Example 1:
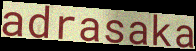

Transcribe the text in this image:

adrasaka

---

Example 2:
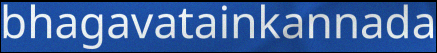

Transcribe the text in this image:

bhagavatainkannada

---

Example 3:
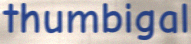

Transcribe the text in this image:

thumbigal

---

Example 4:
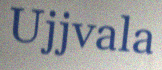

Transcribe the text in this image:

Ujjvala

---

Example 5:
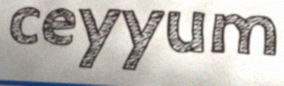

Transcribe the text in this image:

ceyyum